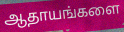
ஆதாயங்களை